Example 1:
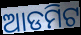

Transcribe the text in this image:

ଆଡମିଟ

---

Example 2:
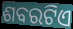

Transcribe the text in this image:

ଶବରଟିଏ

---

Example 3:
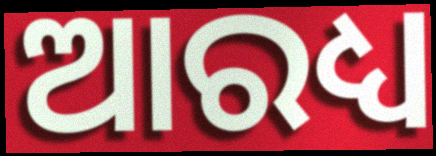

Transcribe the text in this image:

ଆରଧ୍ୟ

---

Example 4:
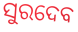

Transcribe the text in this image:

ସୁରଦେବ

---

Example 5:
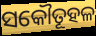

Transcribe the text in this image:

ସକୌତୂହଳ